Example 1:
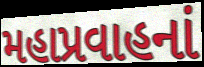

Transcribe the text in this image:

મહાપ્રવાહનાં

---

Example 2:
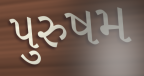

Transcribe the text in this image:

પુરુષમ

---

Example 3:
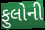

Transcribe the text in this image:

ફુલોની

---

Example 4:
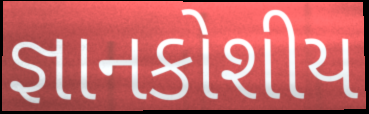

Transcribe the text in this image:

જ્ઞાનકોશીય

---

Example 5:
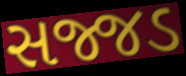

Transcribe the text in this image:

સજ્જડ